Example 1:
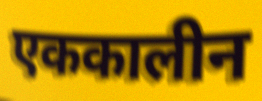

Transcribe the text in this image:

एककालीन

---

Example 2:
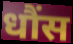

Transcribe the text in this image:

धौंस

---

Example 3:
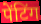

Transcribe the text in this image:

पेंटिंग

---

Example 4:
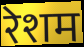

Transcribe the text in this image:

रेशम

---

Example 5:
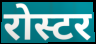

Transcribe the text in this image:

रोस्टर